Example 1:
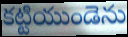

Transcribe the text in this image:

కట్టియుండెను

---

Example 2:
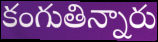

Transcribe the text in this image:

కంగుతిన్నారు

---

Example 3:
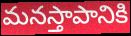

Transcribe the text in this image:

మనస్తాపానికి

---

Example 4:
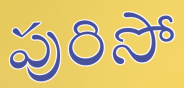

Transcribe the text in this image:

పురిసో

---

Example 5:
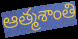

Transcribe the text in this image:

ఆత్మశాంతి